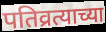
पतिव्रत्याच्या